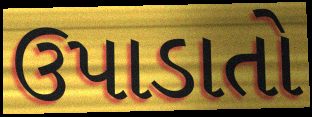
ઉપાડાતો